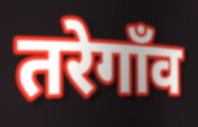
तरेगाँव